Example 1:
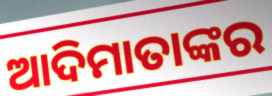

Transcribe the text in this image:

ଆଦିମାତାଙ୍କର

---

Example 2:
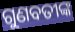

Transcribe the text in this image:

ଗୁଣବତୀଙ୍କ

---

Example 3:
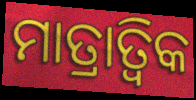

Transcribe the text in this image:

ମାତ୍ରାତ୍ଵିକ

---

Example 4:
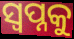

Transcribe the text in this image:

ସ୍ଵପ୍ନକୁ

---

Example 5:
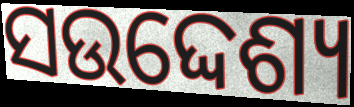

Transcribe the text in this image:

ସଉଦ୍ଦେଶ୍ୟ